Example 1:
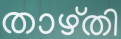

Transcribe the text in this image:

താഴ്തി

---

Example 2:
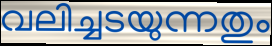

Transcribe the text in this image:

വലിച്ചടയുന്നതും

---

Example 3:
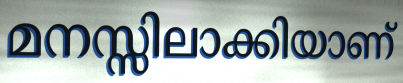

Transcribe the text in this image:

മനസ്സിലാക്കിയാണ്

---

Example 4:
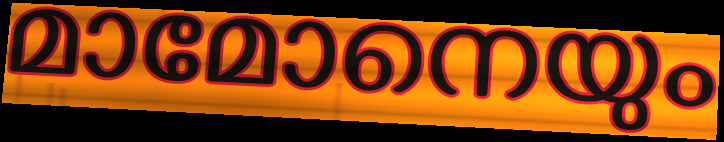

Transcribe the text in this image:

മാമോനെയും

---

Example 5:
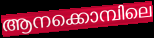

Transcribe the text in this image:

ആനക്കൊമ്പിലെ